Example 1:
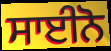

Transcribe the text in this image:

ਸਾਈਨੋ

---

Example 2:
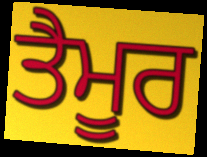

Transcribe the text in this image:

ਤੈਮੂਰ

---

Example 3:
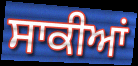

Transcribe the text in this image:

ਸਾਕੀਆਂ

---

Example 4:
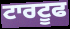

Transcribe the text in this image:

ਟਾਰਟੂਫ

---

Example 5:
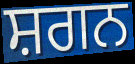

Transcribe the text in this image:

ਸ਼ਗਨ